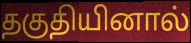
தகுதியினால்